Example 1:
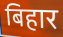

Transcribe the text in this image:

बिहार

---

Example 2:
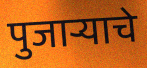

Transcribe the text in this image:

पुजाऱ्याचे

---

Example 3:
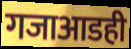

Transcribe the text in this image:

गजाआडही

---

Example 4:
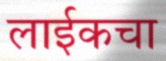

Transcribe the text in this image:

लाईकचा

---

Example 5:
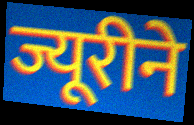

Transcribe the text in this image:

ज्यूरीने